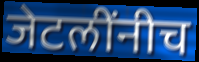
जेटलींनीच